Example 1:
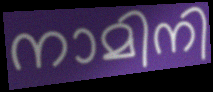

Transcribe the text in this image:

നാമിനി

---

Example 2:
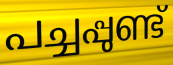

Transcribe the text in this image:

പച്ചപ്പുണ്ട്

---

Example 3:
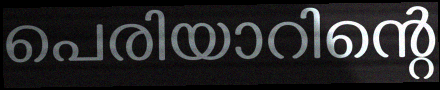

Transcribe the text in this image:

പെരിയാറിന്റെ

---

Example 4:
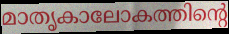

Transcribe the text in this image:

മാതൃകാലോകത്തിന്റെ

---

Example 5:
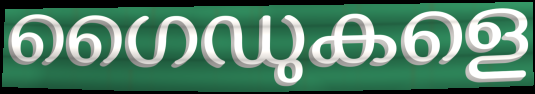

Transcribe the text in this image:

ഗൈഡുകളെ